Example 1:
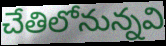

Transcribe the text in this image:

చేతిలోనున్నవి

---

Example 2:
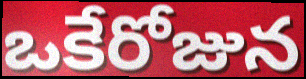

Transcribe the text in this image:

ఒకేరోజున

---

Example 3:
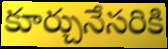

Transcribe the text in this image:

కూర్చునేసరికి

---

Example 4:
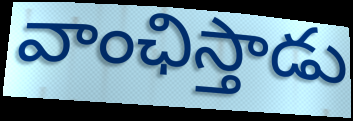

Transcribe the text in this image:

వాంఛిస్తాడు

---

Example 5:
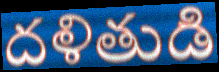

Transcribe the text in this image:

దళితుడి